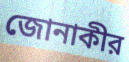
জোনাকীর